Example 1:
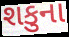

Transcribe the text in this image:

શકુના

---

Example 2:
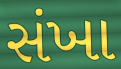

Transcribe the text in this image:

સંખા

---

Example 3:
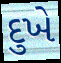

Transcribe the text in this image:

દુખે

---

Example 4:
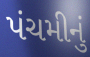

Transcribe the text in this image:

પંચમીનું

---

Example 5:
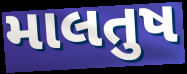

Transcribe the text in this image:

માલતુષ